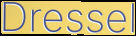
Dressel